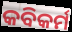
କବିକର୍ମ